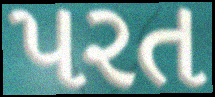
પરત